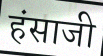
हंसाजी